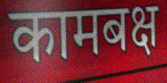
कामबक्ष